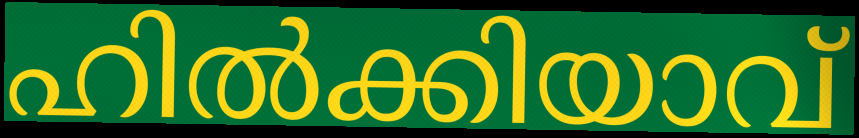
ഹിൽക്കിയാവ്